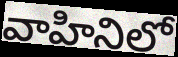
వాహినిలో